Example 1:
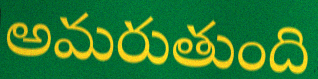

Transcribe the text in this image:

అమరుతుంది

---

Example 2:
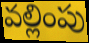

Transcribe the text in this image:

వల్లింపు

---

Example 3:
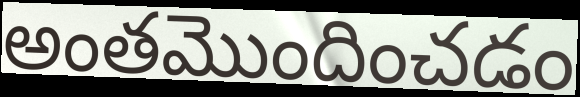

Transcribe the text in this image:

అంతమొందించడం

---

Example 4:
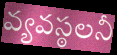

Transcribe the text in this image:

వ్యవస్ఠలనీ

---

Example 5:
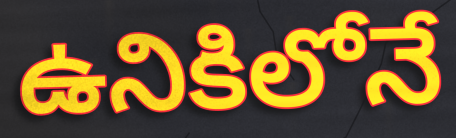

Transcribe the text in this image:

ఉనికిలోనే